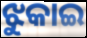
ଝୁକାଇ